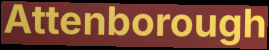
Attenborough